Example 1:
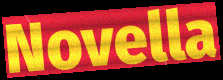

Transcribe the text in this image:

Novella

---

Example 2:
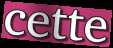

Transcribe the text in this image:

cette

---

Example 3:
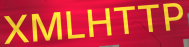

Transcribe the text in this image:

XMLHTTP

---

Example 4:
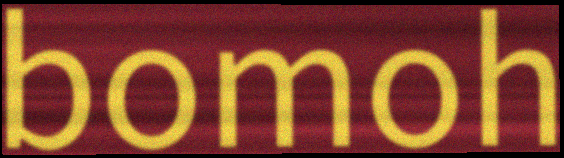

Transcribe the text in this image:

bomoh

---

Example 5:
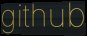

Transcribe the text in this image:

github